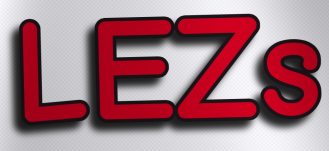
LEZs